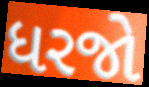
ધરજો